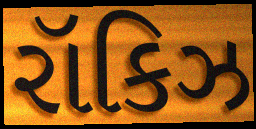
રૉકિઝ